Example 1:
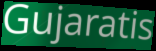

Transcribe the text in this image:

Gujaratis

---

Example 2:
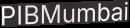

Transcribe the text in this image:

PIBMumbai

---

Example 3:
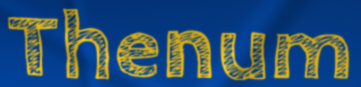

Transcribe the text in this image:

Thenum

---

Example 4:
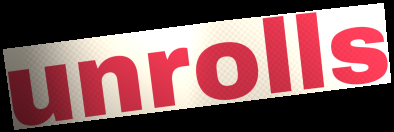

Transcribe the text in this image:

unrolls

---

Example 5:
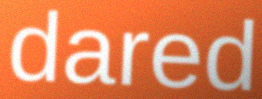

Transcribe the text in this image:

dared